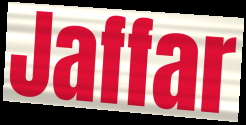
Jaffar